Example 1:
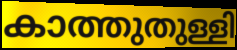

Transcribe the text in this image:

കാത്തുതുള്ളി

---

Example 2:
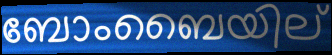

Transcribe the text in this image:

ബോംബൈയില്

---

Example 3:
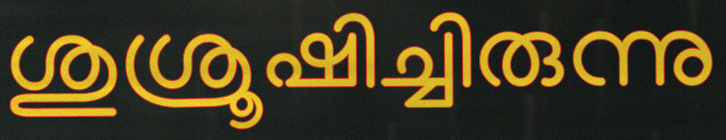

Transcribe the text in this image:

ശുശ്രൂഷിച്ചിരുന്നു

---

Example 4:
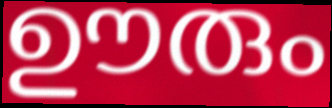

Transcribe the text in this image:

ഊരും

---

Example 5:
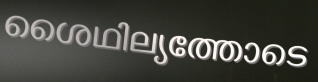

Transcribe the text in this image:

ശൈഥില്യത്തോടെ